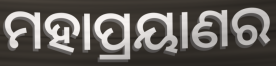
ମହାପ୍ରୟାଣର